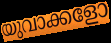
യുവാക്കളോ